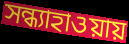
সন্ধ্যাহাওয়ায়